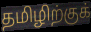
தமிழிற்குக்